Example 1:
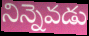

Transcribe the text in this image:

నిన్నెవడు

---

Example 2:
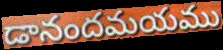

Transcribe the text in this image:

డానందమయము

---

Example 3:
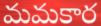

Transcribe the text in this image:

మమకార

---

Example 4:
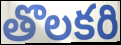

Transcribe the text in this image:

తొలకరి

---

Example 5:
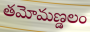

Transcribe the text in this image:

తమోమణ్డలం